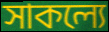
সাকল্যে